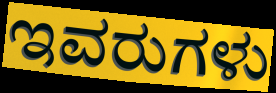
ಇವರುಗಳು